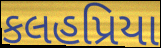
કલહપ્રિયા